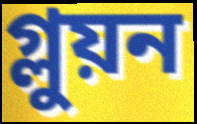
গ্লুয়ন